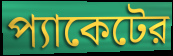
প্যাকেটের